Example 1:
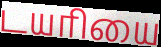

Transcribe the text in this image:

டயரியை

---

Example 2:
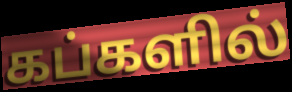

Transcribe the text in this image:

கப்களில்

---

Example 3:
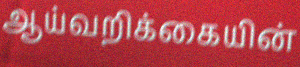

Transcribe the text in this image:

ஆய்வறிக்கையின்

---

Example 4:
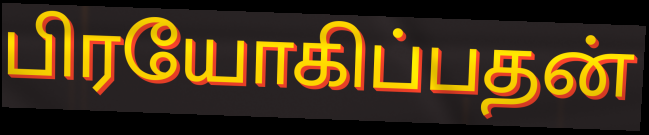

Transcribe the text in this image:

பிரயோகிப்பதன்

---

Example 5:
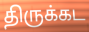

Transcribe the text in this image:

திருக்கட